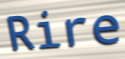
Rire